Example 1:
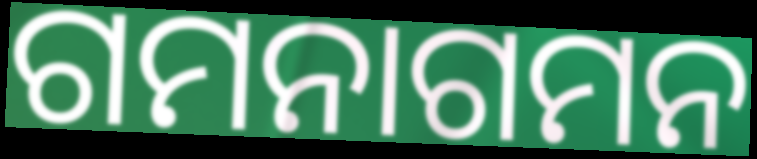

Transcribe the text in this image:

ଗମନାଗମନ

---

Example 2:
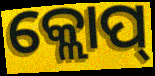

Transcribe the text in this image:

କ୍ଲୋପ୍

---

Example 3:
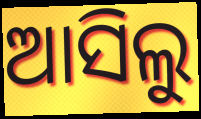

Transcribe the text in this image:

ଆସିଲୁ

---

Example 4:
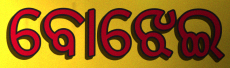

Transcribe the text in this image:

ବୋଝେଇ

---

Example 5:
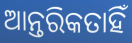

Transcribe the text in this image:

ଆନ୍ତରିକତାହିଁ